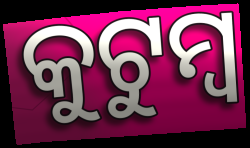
କୁଟୁମ୍ୱ